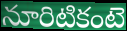
నూరిటికంటె